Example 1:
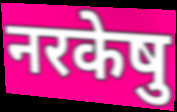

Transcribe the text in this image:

नरकेषु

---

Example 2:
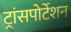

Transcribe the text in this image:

ट्रांसपोर्टेशन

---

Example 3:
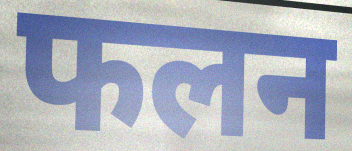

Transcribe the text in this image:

फलन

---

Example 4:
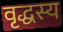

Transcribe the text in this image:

वृद्धस्य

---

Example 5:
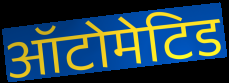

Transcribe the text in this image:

ऑटोमेटिड